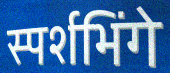
स्पर्शभिंगे